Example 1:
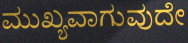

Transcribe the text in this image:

ಮುಖ್ಯವಾಗುವುದೇ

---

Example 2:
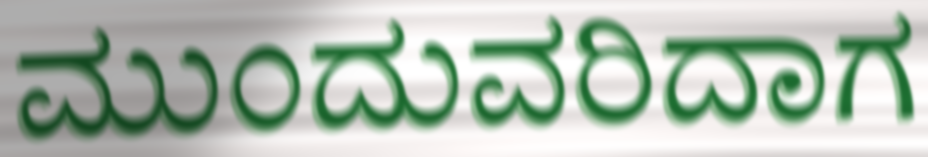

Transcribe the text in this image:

ಮುಂದುವರಿದಾಗ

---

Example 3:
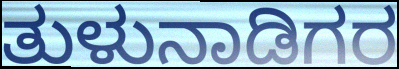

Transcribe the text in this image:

ತುಳುನಾಡಿಗರ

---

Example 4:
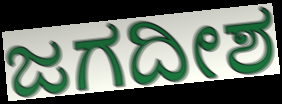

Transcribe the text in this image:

ಜಗದೀಶ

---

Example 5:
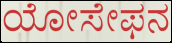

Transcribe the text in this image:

ಯೋಸೇಫನ